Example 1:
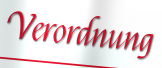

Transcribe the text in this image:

Verordnung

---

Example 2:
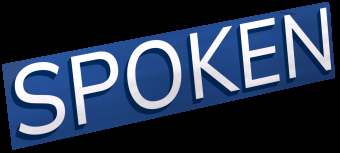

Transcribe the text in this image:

SPOKEN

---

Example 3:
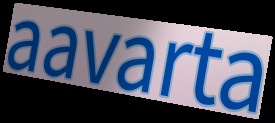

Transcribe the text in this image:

aavarta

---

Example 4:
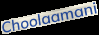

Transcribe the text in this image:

Choolaamani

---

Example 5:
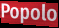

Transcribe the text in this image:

Popolo